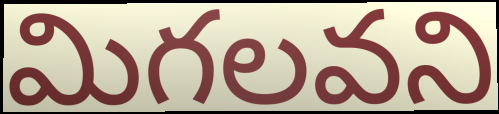
మిగలవని